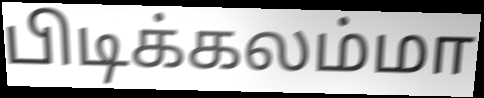
பிடிக்கலம்மா